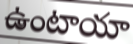
ఉంటాయా